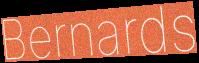
Bernards